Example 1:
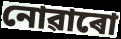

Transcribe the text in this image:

নোৱাৰো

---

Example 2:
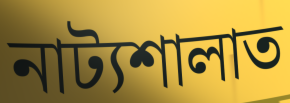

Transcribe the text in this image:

নাট্যশালাত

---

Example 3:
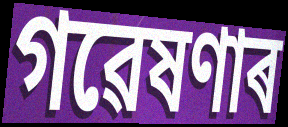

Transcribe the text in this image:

গৱেষণাৰ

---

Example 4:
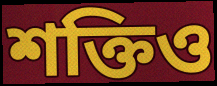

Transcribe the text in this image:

শক্তিও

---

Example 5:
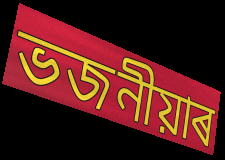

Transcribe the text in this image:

ভজনীয়াৰ